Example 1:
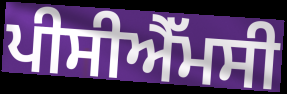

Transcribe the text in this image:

ਪੀਸੀਐੱਮਸੀ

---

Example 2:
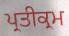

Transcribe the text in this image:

ਪ੍ਰਤੀਕ੍ਰਮ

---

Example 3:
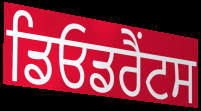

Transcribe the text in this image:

ਡਿਓਡਰੈਂਟਸ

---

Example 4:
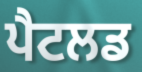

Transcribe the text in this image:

ਪੈਟਲਡ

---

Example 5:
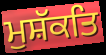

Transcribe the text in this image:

ਮੁਸ਼ੱਕਤਿ